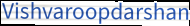
Vishvaroopdarshan